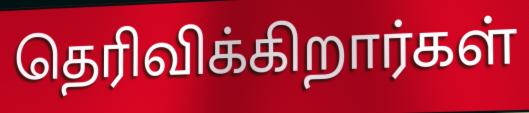
தெரிவிக்கிறார்கள்